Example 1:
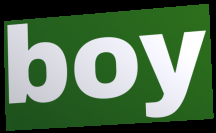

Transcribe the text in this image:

boy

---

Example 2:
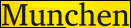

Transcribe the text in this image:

Munchen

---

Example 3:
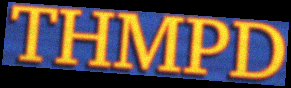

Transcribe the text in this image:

THMPD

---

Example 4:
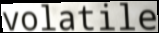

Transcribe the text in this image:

volatile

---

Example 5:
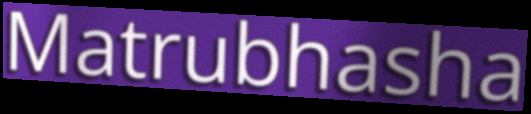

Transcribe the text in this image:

Matrubhasha